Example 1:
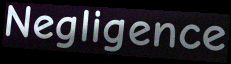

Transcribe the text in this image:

Negligence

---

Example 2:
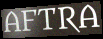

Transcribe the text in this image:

AFTRA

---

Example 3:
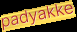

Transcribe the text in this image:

padyakke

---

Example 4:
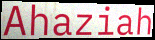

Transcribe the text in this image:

Ahaziah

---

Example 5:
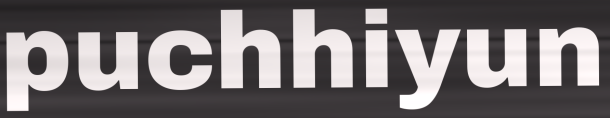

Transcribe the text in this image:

puchhiyun